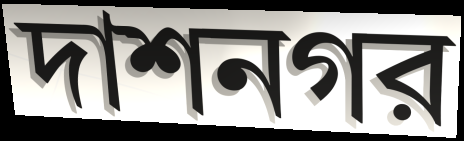
দাশনগর